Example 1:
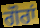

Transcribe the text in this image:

ਗੌਰਾਂ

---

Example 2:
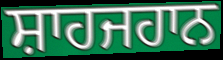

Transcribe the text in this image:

ਸ਼ਾਹਜਹਾਨ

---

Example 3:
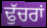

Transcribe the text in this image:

ਢੁੱਚਰਾਂ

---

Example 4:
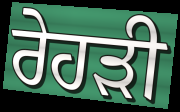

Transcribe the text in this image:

ਰੇਹੜੀ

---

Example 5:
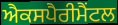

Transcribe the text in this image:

ਐਕਸਪੈਰੀਮੈਂਟਲ